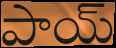
పాయ్